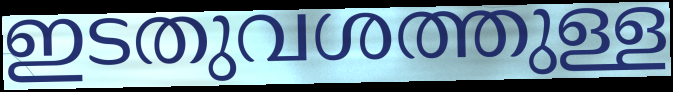
ഇടതുവശത്തുള്ള